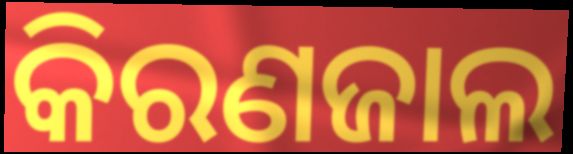
କିରଣଜାଲ